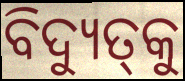
ବିଦ୍ୟୁତ୍‌କୁ